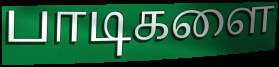
பாடிகளை